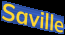
Saville